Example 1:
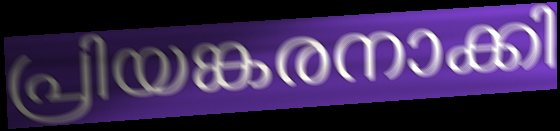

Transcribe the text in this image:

പ്രിയങ്കരനാക്കി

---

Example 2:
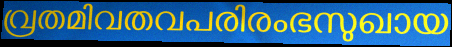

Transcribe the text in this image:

വ്രതമിവതവപരിരംഭസുഖായ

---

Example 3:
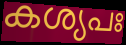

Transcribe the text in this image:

കശ്യപഃ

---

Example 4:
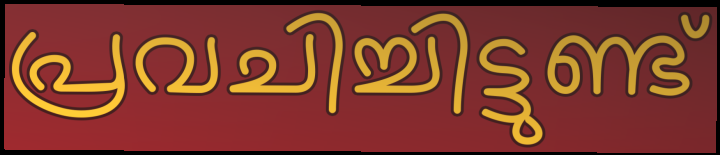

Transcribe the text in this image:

പ്രവചിച്ചിട്ടുണ്ട്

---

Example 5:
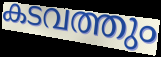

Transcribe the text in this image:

കടവത്തും